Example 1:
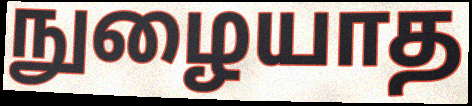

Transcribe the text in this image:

நுழையாத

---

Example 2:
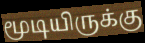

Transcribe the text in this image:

மூடியிருக்கு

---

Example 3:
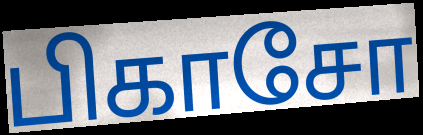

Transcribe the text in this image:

பிகாசோ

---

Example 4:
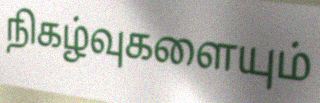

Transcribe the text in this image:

நிகழ்வுகளையும்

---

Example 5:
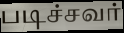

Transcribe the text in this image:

படிச்சவர்